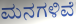
ಮನಗಳಿವೆ